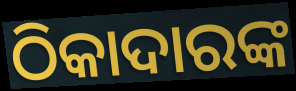
ଠିକାଦାରଙ୍କ